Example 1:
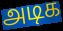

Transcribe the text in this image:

அடிக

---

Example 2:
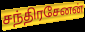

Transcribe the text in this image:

சந்திரசேனன்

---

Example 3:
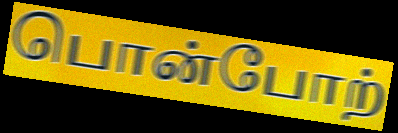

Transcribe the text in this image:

பொன்போற்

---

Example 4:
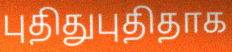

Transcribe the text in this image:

புதிதுபுதிதாக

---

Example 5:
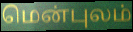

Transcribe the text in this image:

மென்புலம்